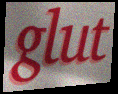
glut